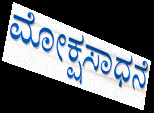
ಮೋಕ್ಷಸಾಧನೆ